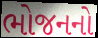
ભોજનનો